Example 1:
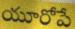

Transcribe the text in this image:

యూరోపే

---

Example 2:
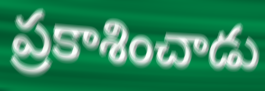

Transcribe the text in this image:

ప్రకాశించాడు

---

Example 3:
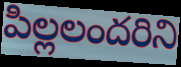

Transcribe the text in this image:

పిల్లలందరిని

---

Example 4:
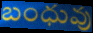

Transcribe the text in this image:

బంధువు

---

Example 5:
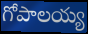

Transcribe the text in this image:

గోపాలయ్య